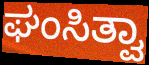
ಘಂಸಿತ್ವಾ